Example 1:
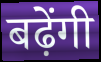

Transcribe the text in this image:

बढ़ेंगी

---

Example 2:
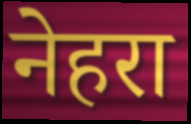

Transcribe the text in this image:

नेहरा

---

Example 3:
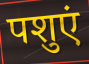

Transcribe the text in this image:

पशुएं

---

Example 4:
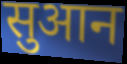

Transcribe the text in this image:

सुआन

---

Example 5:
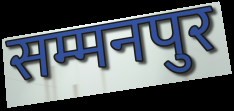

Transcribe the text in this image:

सम्मनपुर